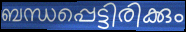
ബന്ധപ്പെട്ടിരിക്കും